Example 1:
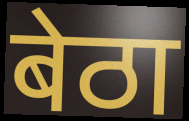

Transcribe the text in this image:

बेठा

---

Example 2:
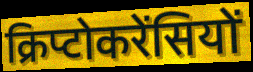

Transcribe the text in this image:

क्रिप्टोकरेंसियों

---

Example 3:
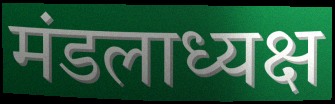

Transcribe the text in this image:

मंडलाध्यक्ष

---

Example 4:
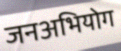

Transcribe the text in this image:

जनअभियोग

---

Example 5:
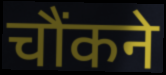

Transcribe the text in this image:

चौंकने